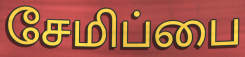
சேமிப்பை